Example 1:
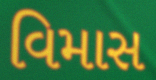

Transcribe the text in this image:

વિમાસ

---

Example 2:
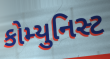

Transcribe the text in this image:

કોમ્યુનિસ્ટ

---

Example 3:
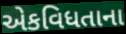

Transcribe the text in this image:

એકવિધતાના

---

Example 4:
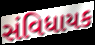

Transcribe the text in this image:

સંવિધાયક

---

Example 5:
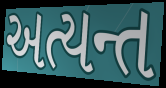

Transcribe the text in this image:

અત્યન્ત